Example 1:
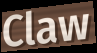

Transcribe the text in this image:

Claw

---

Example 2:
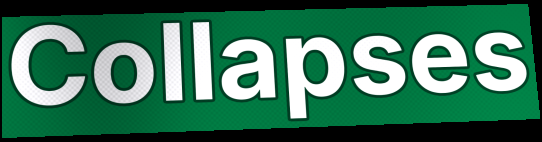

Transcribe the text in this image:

Collapses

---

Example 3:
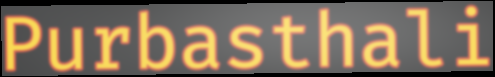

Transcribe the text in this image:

Purbasthali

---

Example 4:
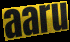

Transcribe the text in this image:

aaru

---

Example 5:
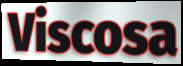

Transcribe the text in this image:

Viscosa